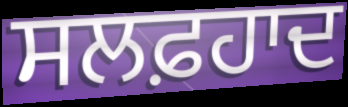
ਸਲਫ਼ਹਾਦ